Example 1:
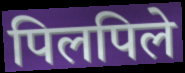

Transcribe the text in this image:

पिलपिले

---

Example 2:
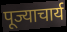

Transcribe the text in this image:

पूज्याचार्य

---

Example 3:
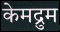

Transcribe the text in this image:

केमद्रुम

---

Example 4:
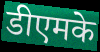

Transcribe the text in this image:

डीएमके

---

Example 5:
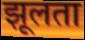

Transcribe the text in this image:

झूलता